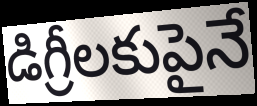
డిగ్రీలకుపైనే